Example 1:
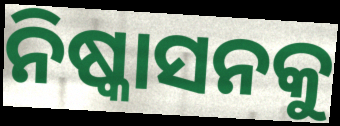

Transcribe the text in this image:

ନିଷ୍କାସନକୁ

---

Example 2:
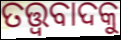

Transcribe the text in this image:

ତତ୍ତ୍ୱବାଦକୁ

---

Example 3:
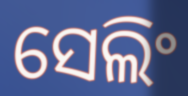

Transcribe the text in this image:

ସେଲିଂ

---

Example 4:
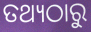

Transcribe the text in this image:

ତଥ୍ୟଠାରୁ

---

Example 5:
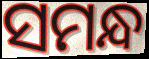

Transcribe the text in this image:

ସମନ୍ଧ